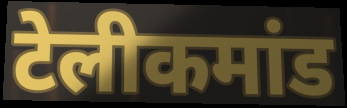
टेलीकमांड